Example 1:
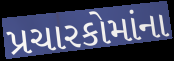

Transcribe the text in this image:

પ્રચારકોમાંના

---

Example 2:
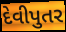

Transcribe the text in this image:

દેવીપુતર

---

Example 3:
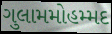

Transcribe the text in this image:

ગુલામમોહમ્મદ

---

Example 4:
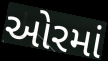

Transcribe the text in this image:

ઓરમાં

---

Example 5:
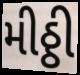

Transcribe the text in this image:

મીઠ્ઠી